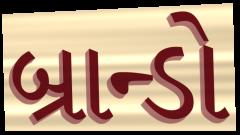
બ્રાન્ડો